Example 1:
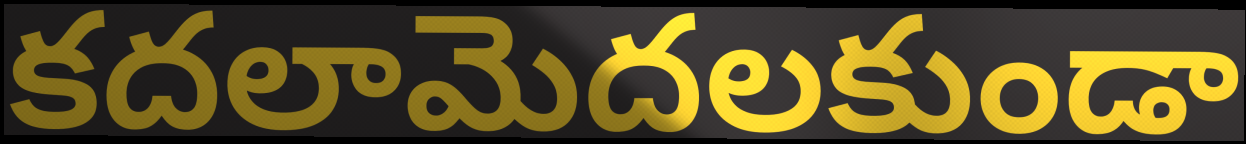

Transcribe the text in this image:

కదలామెదలకుండా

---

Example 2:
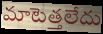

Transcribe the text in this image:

మాటెత్తలేదు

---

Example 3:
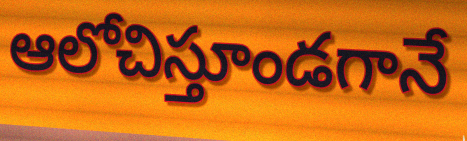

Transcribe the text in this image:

ఆలోచిస్తూండగానే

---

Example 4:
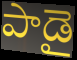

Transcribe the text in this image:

పాడై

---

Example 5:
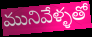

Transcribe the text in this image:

మునివేళ్ళతో